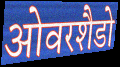
ओवरशैडो